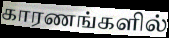
காரணங்களில்